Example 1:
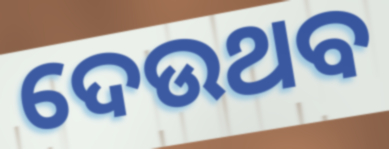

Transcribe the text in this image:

ଦେଉଥବ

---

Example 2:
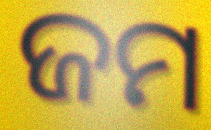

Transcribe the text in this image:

ଜମ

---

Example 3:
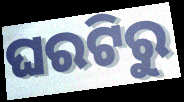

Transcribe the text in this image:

ଘରଟିରୁ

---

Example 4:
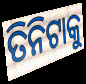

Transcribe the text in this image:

ତିନିଟାକୁ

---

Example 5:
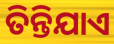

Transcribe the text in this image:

ତିନ୍ତିଯାଏ